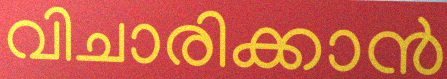
വിചാരിക്കാൻ